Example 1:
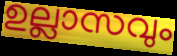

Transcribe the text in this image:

ഉല്ലാസവും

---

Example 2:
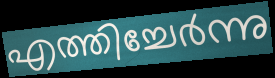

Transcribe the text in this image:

എത്തിച്ചേർന്നു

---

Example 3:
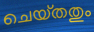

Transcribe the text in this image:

ചെയ്‌തതും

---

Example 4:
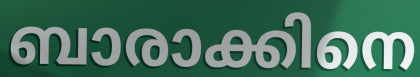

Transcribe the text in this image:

ബാരാക്കിനെ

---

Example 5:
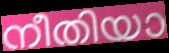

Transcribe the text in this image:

നീതിയാ